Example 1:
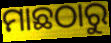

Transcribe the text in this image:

ମାଛଠାରୁ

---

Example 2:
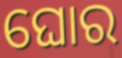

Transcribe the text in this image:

ଘୋର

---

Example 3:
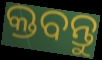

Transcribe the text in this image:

କ୍ତବନ୍ତୁ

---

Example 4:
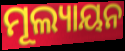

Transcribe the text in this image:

ମୂଲ୍ୟାୟନ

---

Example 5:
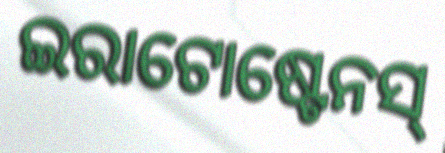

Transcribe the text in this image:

ଇରାଟୋଷ୍ଟେନସ୍